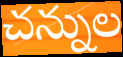
చన్నుల